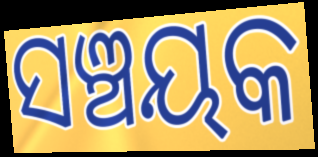
ସଞ୍ଚୟକ